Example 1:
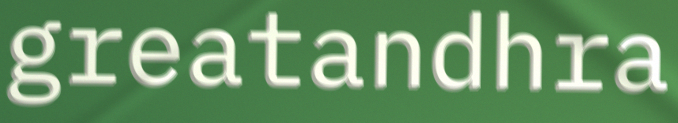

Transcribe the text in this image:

greatandhra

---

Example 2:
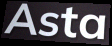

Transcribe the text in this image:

Asta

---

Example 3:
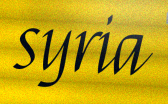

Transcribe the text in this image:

syria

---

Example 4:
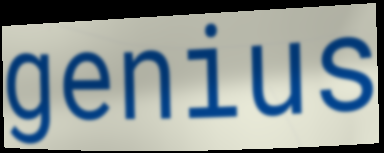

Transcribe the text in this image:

genius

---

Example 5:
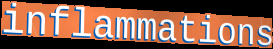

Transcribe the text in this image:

inflammations